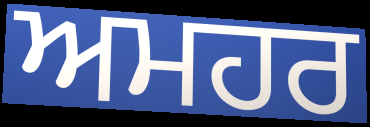
ਅਮਹਰ